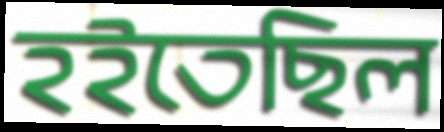
হইতেছিল